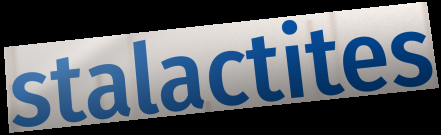
stalactites